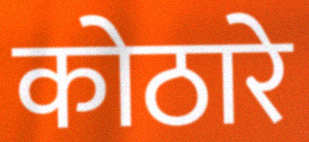
कोठारे